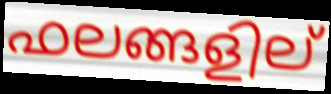
ഫലങ്ങളില്